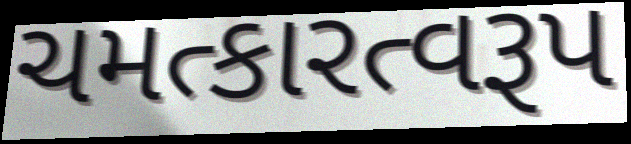
ચમત્કારત્વરૂપ